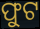
ଫୁଟ